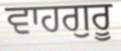
ਵਾਹਗੁਰੂ